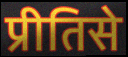
प्रीतिसे